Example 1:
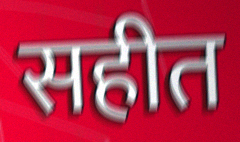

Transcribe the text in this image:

सहीत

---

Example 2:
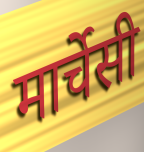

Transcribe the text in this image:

मार्चेसी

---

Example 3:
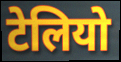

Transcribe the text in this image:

टेलियो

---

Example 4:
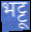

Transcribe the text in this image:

भट्टू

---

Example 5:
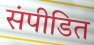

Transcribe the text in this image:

संपीडित